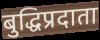
बुद्धिप्रदाता